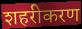
शहरीकरण